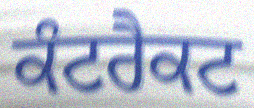
ਕੰਟਰੈਕਟ